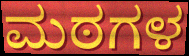
ಮಠಗಳ